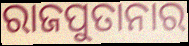
ରାଜପୁତାନାର